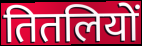
तितलियों